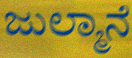
ಜುಲ್ಮಾನೆ